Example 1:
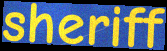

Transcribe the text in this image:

sheriff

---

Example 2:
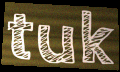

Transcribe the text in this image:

tuk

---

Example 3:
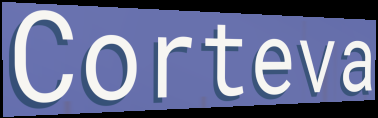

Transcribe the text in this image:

Corteva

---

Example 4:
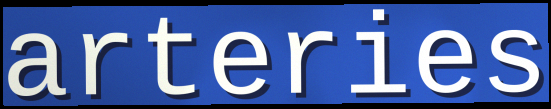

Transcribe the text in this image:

arteries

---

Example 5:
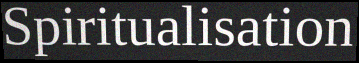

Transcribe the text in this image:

Spiritualisation